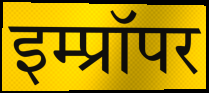
इम्प्रॉपर